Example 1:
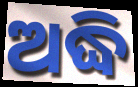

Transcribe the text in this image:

ଅଦ୍ଧି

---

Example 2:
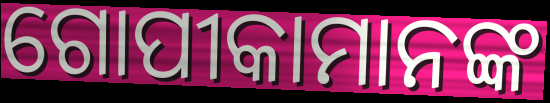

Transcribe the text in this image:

ଗୋପୀକାମାନଙ୍କ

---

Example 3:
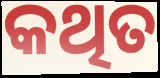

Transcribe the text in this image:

କଥିତ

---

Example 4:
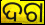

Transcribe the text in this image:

ଦଗ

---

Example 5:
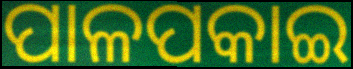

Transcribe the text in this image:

ପାଳପକାଇ